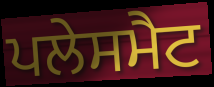
ਪਲੇਸਮੈਟ